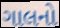
ગાલનો